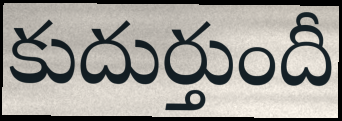
కుదుర్తుందీ